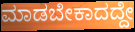
ಮಾಡಬೇಕಾದದ್ದೇ